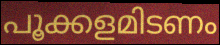
പൂക്കളമിടണം